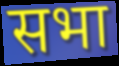
सभा